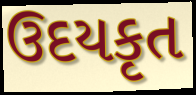
ઉદયકૃત